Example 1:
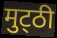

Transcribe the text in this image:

मुट्‌ठी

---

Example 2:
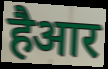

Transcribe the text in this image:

हैआर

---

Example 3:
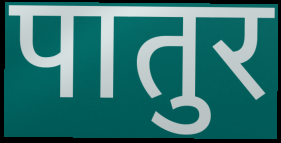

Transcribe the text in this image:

पातुर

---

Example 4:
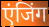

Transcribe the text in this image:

एंजिंग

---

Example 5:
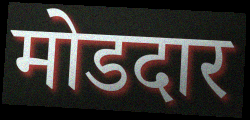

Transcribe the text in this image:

मोडदार